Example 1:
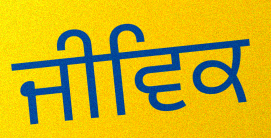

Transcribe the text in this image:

ਜੀਵਿਕ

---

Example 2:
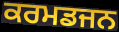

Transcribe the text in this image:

ਕਰਮਡਜਨ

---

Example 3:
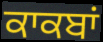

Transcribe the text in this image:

ਕਾਕਬਾਂ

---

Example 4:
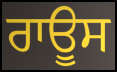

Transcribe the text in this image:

ਰਾਊਸ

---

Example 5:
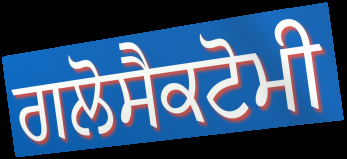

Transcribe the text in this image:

ਗਲੋਸੈਕਟੋਮੀ